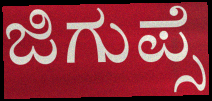
ಜಿಗುಪ್ಸೆ